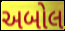
અબોલ